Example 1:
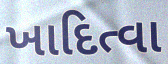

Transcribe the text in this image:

ખાદિત્વા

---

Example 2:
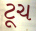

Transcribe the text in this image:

ટૂચ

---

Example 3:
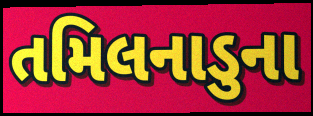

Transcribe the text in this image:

તમિલનાડુના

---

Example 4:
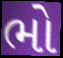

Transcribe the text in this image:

ભો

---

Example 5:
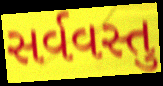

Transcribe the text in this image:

સર્વવસ્તુ